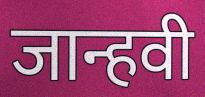
जान्हवी